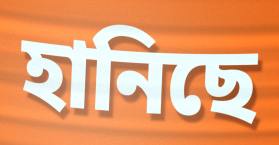
হানিছে